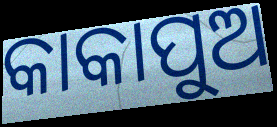
କାକାପୁଅ